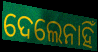
ଦେଲେନାହିଁ